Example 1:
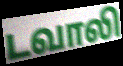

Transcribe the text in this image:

டவாலி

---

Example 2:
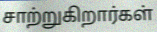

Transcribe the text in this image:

சாற்றுகிறார்கள்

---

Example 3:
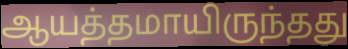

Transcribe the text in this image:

ஆயத்தமாயிருந்தது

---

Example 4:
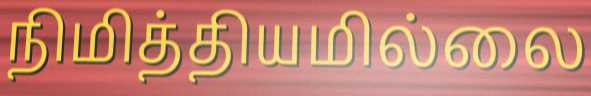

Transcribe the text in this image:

நிமித்தியமில்லை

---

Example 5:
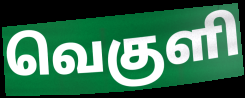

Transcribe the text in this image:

வெகுளி